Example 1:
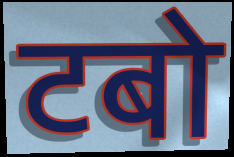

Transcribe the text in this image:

टबो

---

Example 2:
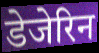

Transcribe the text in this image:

डेजेरिन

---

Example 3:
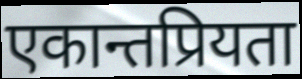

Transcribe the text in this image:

एकान्तप्रियता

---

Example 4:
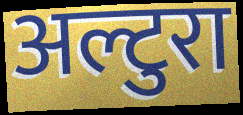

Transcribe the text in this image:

अल्टुरा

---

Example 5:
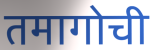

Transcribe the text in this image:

तमागोची